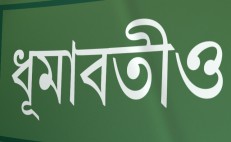
ধূমাবতীও